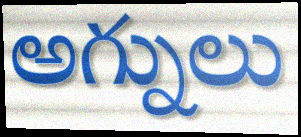
అగ్నులు